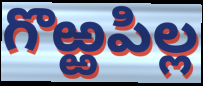
గొఱ్ఱపిల్ల